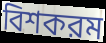
বিশকরম